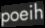
poeih